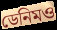
ডেনিমও